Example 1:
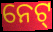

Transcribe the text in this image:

ନେଟ୍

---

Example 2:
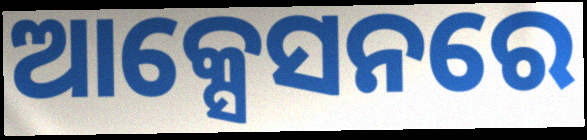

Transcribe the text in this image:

ଆକ୍ସେସନରେ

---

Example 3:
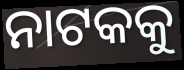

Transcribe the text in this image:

ନାଟକକୁ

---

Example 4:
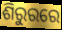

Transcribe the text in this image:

ଶିରୁରରେ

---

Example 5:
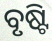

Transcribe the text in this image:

ବୃଷ୍ଟି